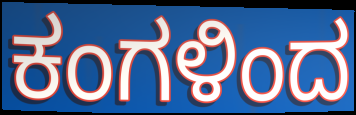
ಕಂಗಳಿಂದ